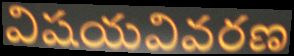
విషయవివరణ